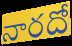
నారదో